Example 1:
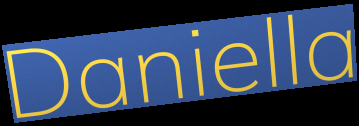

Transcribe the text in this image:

Daniella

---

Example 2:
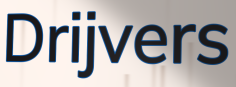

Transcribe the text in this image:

Drijvers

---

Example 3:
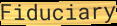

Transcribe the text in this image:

Fiduciary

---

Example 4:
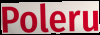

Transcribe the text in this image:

Poleru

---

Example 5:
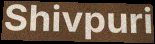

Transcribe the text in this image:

Shivpuri